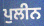
ਪੁਲੀਨ